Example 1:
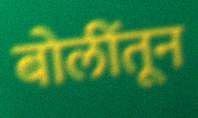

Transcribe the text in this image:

बोलींतून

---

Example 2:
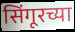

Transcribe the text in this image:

सिंगूरच्या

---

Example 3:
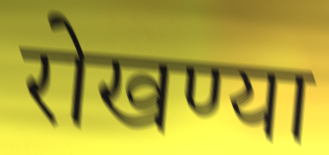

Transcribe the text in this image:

रोखण्या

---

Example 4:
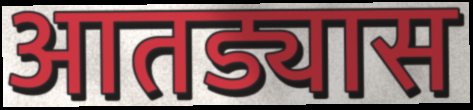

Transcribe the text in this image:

आतड्यास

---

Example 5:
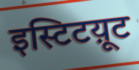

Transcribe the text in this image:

इस्टिटय़ूट